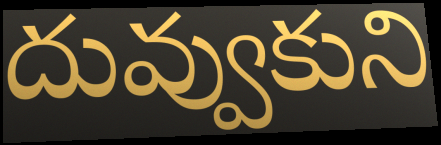
దువ్వుకుని